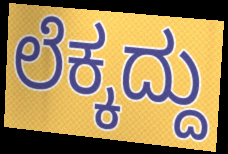
ಲೆಕ್ಕದ್ದು